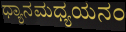
ಧ್ಯಾನಮಧ್ಯಯನಂ